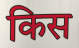
किस